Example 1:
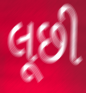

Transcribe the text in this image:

લૂછી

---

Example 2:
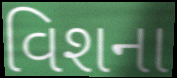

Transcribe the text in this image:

વિશના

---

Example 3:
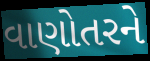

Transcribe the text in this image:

વાણોતરને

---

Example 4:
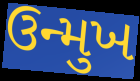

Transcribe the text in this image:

ઉન્મુખ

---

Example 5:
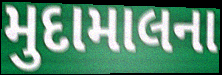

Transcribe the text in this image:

મુદામાલના